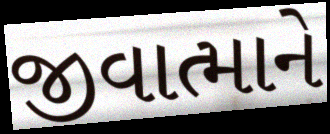
જીવાત્માને